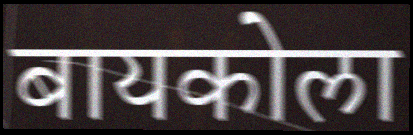
बायकोला